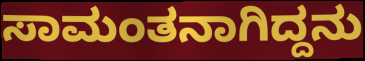
ಸಾಮಂತನಾಗಿದ್ದನು